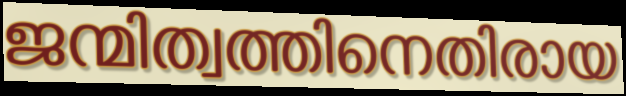
ജന്മിത്വത്തിനെതിരായ